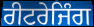
ਰੀਟਰੇਜਿੰਗ